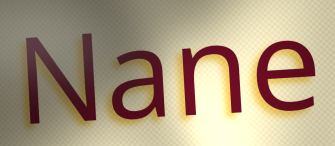
Nane